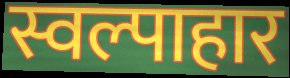
स्‍वल्‍पाहार